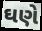
ઘણે